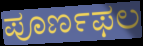
ಪೂರ್ಣಫಲ